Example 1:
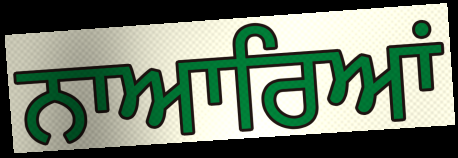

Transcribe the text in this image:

ਨਾਆਰਿਆਂ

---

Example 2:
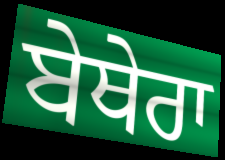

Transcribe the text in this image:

ਬੇਥੇਰਾ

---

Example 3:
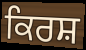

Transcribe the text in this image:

ਕਿਰਸ਼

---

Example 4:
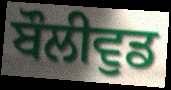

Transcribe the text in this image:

ਬੌਲੀਵੁਡ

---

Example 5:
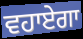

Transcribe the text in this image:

ਵਹਾਏਗਾ